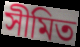
সীমিত